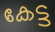
കേട്ട